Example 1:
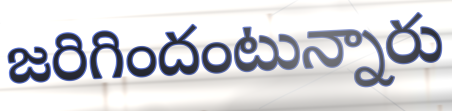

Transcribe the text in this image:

జరిగిందంటున్నారు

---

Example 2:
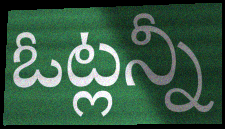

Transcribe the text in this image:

ఓట్లన్నీ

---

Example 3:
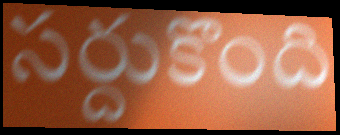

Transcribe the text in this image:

సర్దుకొంది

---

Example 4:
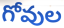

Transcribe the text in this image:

గోవుల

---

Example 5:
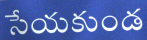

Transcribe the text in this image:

సేయకుండ